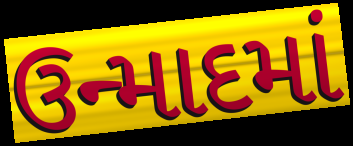
ઉન્માદમાં